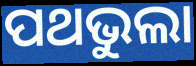
ପଥଭୁଲା